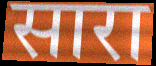
सारा